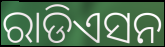
ରାଡିଏସନ